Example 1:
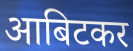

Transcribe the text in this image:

आबिटकर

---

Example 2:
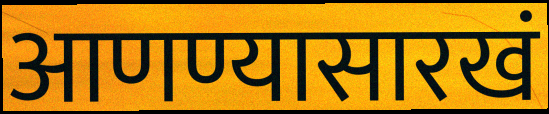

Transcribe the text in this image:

आणण्यासारखं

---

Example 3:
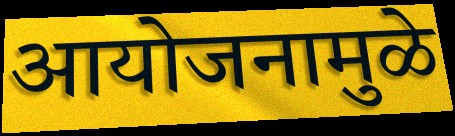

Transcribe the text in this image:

आयोजनामुळे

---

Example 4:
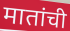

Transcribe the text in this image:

मातांची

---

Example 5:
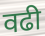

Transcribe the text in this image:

वढी